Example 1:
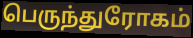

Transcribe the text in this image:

பெருந்துரோகம்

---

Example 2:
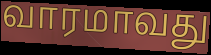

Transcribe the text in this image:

வாரமாவது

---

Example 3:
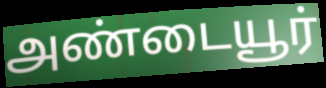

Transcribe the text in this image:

அண்டையூர்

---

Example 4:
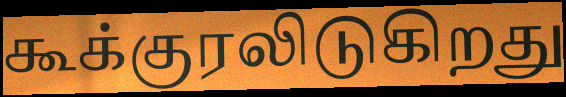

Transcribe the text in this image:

கூக்குரலிடுகிறது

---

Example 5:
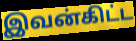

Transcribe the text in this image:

இவன்கிட்ட